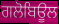
ਗਲੋਬਿਊਲ